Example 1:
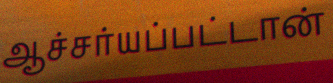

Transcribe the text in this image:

ஆச்சர்யப்பட்டான்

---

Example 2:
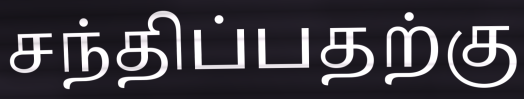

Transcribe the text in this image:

சந்திப்பதற்கு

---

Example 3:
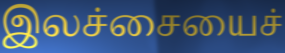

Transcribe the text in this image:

இலச்சையைச்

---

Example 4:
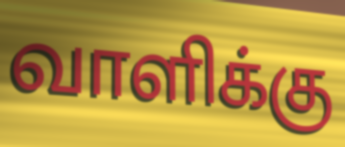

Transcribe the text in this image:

வாளிக்கு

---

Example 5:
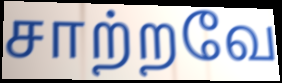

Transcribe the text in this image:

சாற்றவே